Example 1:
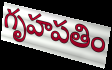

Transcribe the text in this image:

గృహపతిం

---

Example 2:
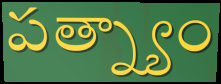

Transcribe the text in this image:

పత్న్యాం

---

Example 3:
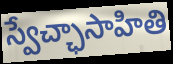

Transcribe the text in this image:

స్వేచ్ఛాసాహితి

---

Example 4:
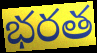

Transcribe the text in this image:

భరత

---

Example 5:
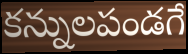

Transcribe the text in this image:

కన్నులపండగే